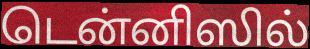
டென்னிஸில்